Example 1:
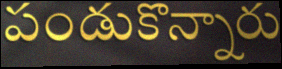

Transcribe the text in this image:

పండుకొన్నారు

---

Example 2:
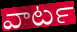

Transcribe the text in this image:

వాటర్‍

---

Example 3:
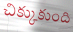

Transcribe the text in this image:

చిక్కుకుంది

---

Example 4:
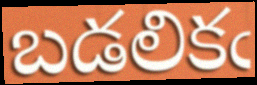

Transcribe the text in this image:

బడలికఁ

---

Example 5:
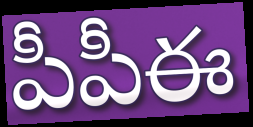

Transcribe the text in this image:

పీపీఈ